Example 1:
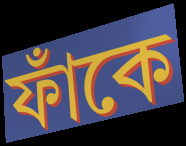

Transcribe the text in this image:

ফাঁকে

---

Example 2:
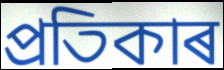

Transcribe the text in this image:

প্ৰতিকাৰ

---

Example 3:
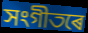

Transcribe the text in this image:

সংগীতৰে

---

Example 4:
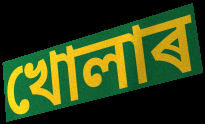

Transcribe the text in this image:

খোলাৰ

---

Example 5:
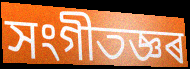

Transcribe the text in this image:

সংগীতজ্ঞৰ